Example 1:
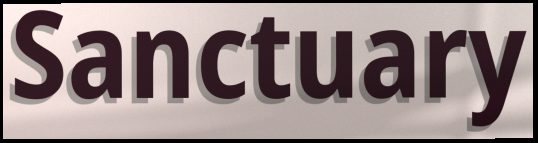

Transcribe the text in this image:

Sanctuary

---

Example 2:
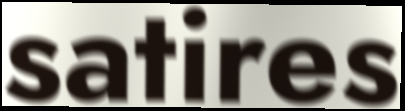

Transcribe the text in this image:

satires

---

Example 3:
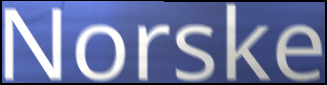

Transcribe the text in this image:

Norske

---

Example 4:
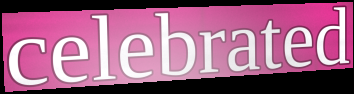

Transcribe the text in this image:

celebrated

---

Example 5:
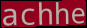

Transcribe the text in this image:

achhe